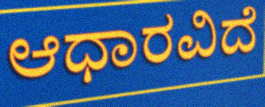
ಆಧಾರವಿದೆ